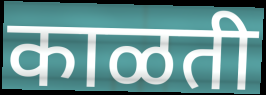
काळती